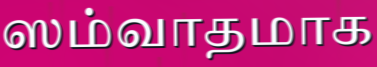
ஸம்வாதமாக